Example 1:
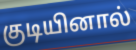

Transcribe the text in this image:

குடியினால்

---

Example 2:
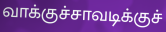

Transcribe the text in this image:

வாக்குச்சாவடிக்குச்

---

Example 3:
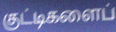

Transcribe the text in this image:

குட்டிகளைப்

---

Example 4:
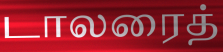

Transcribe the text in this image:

டாலரைத்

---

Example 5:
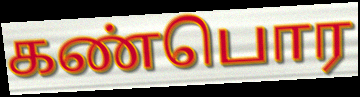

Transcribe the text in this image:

கண்பொர